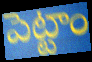
పెట్టాం